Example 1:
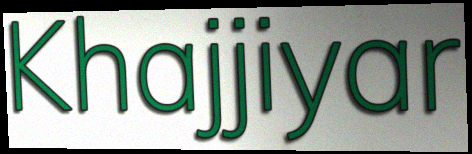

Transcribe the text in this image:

Khajjiyar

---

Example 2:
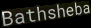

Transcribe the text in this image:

Bathsheba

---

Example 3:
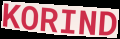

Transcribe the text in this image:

KORIND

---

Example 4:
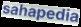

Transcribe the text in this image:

sahapedia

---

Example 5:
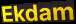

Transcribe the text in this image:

Ekdam